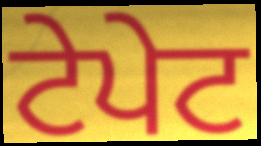
ਟੇਪੇਟ